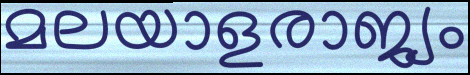
മലയാളരാജ്യം